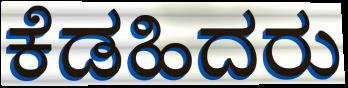
ಕೆಡಹಿದರು